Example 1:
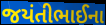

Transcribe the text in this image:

જયંતીભાઈના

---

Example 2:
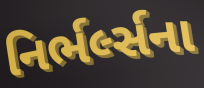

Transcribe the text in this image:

નિર્ભર્લ્સના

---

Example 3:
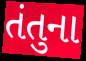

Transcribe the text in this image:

તંતુના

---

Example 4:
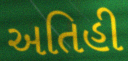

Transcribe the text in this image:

અતિહી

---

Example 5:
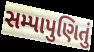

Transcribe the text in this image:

સમ્પાપુણિતું